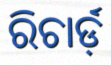
ରିଚାର୍ଡ଼